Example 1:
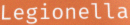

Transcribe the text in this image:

Legionella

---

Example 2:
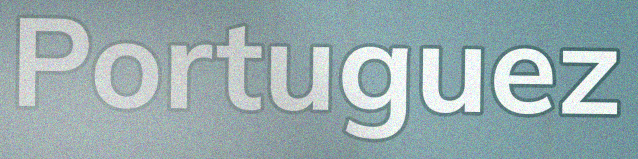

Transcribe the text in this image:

Portuguez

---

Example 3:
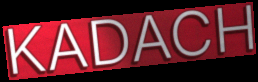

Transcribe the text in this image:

KADACH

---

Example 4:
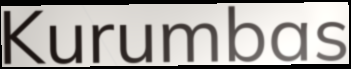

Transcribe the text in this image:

Kurumbas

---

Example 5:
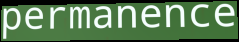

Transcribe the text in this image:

permanence